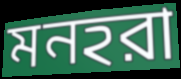
মনহরা